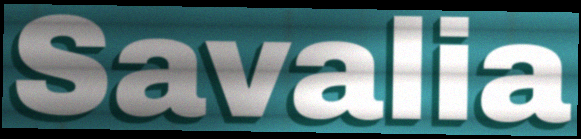
Savalia